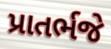
પ્રાતર્ભજે